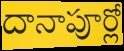
దానాపూర్లో